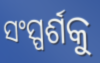
ସଂସ୍ପର୍ଶକୁ